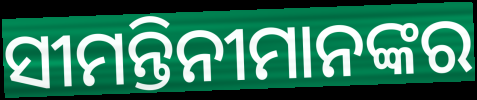
ସୀମନ୍ତିନୀମାନଙ୍କର